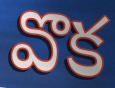
వొక